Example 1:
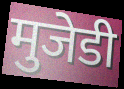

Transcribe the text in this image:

मुजेडी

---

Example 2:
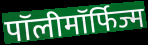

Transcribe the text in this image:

पॉलीमॉर्फिज्म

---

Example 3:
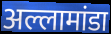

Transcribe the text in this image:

अल्लामांडा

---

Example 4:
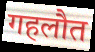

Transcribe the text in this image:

गहलौत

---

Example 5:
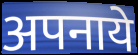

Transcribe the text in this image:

अपनाये